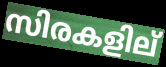
സിരകളില്